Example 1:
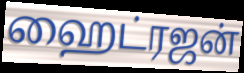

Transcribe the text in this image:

ஹைட்ரஜன்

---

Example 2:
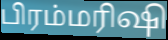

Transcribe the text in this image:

பிரம்மரிஷி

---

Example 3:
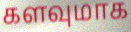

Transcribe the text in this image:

களவுமாக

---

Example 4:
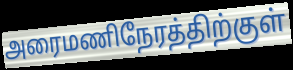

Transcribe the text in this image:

அரைமணிநேரத்திற்குள்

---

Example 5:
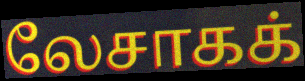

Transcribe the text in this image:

லேசாகக்